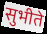
सुभीते